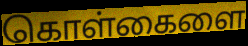
கொள்கைளை